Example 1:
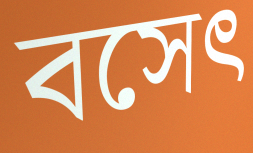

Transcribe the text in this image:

বসেৎ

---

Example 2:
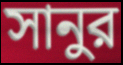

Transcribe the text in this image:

সানুর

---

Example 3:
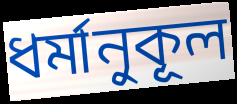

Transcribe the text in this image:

ধর্মানুকূল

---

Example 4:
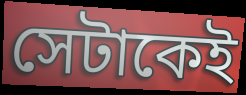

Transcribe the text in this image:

সেটাকেই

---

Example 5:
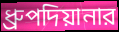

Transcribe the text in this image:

ধ্রুপদিয়ানার